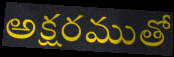
అక్షరముతో